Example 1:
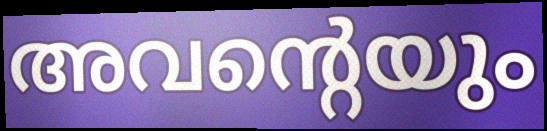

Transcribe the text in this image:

അവന്റെയും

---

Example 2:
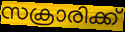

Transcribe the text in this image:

സക്രാരിക്ക്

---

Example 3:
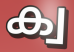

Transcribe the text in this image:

ക്വ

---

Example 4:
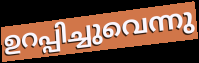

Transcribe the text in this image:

ഉറപ്പിച്ചുവെന്നു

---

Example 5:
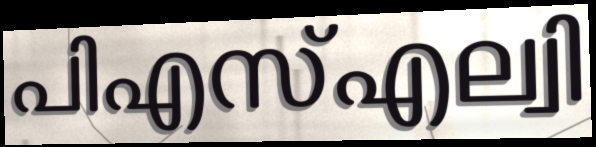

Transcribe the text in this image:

പിഎസ്എല്വി